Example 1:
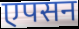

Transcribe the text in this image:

एपसन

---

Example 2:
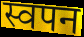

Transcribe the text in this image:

स्वपन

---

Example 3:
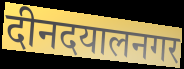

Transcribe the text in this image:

दीनदयालनगर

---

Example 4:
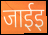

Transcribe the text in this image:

जाईइ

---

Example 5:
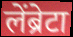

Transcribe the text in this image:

लेंब्रेटा